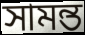
সামন্ত